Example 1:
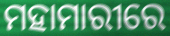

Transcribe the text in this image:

ମହାମାରୀରେ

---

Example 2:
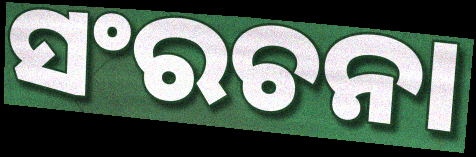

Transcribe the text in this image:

ସଂରଚନା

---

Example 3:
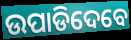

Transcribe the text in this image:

ଉପାଡିଦେବେ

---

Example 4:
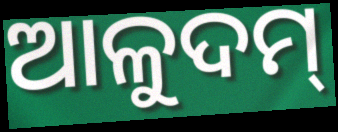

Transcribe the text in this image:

ଆଳୁଦମ୍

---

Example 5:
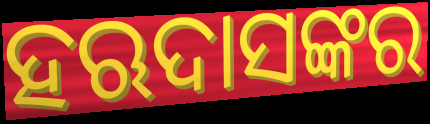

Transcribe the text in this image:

ହଋଦାସଙ୍କର